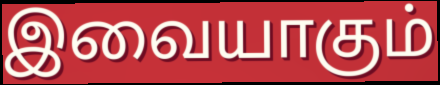
இவையாகும்